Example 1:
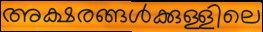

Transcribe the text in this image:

അക്ഷരങ്ങൾക്കുള്ളിലെ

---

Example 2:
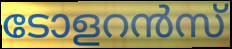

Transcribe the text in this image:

ടോളറൻസ്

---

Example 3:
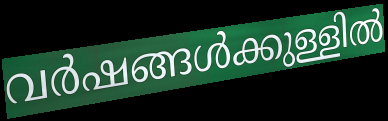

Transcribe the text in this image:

വർഷങ്ങൾക്കുള്ളിൽ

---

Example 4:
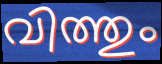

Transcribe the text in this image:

വിത്തും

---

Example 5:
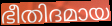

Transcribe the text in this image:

ഭീതിദമായ